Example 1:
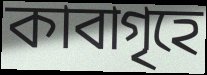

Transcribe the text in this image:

কাবাগৃহে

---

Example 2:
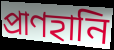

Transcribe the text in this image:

প্রাণহানি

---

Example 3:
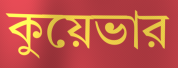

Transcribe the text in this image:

কুয়েভার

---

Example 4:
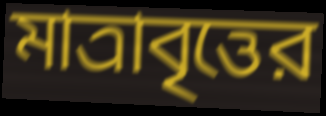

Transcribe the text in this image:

মাত্রাবৃত্তের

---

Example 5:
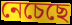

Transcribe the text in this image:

নেচেছে